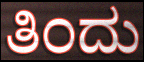
ತಿಂದು